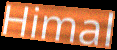
Himal